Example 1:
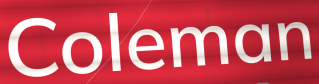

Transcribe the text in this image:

Coleman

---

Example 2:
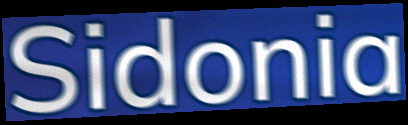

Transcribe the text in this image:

Sidonia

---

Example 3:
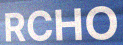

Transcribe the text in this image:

RCHO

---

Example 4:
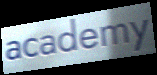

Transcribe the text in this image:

academy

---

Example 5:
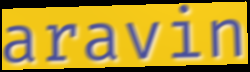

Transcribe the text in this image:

aravin